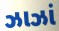
ઝાઝાં